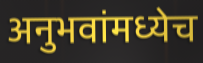
अनुभवांमध्येच